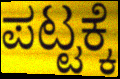
ಪಟ್ಟಕ್ಕೆ